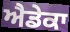
ਐਡੇਕਾ